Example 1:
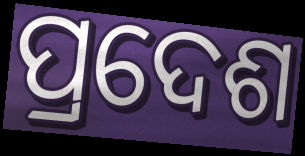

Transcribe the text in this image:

ପ୍ରଦେଶ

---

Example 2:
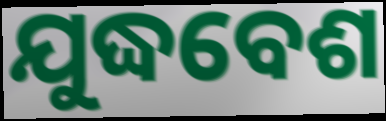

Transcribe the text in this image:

ଯୁଦ୍ଧବେଶ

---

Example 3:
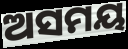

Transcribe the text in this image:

ଅସମୟ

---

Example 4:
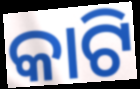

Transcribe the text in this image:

କାଟି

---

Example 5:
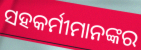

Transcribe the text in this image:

ସହକର୍ମୀମାନଙ୍କର